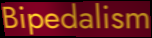
Bipedalism